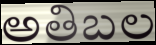
అతిబల